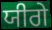
ਯੀਗੇ